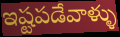
ఇష్టపడేవాళ్ళు